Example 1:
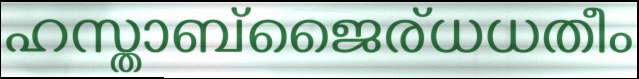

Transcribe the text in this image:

ഹസ്താബ്ജൈര്ധധതീം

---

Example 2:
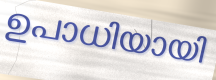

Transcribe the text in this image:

ഉപാധിയായി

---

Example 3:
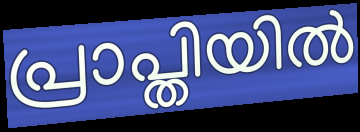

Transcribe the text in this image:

പ്രാപ്തിയിൽ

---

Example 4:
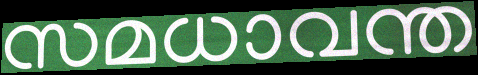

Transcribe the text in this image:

സമധാവന്ത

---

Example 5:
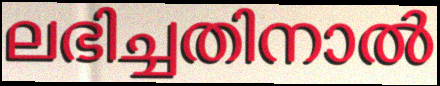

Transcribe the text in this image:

ലഭിച്ചതിനാൽ